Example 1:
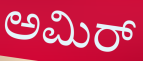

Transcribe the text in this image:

ಅಮಿರ್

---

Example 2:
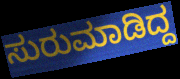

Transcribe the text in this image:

ಸುರುಮಾಡಿದ್ದ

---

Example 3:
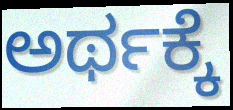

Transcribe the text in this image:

ಅರ್ಥಕ್ಕೆ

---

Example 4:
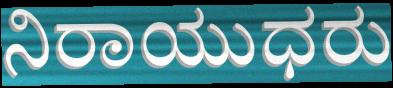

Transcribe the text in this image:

ನಿರಾಯುಧರು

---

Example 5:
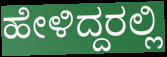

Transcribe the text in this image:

ಹೇಳಿದ್ದರಲ್ಲಿ